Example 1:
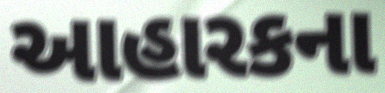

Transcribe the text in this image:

આહારકના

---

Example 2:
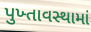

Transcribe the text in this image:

પુખ્તાવસ્થામાં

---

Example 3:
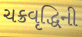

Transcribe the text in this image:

ચક્રવૃદ્ધિની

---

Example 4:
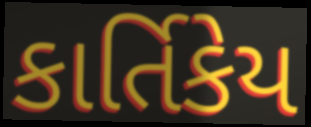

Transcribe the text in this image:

કાર્તિકેય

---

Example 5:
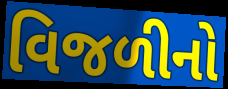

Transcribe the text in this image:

વિજળીનો